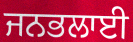
ਜਨਭਲਾਈ